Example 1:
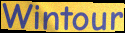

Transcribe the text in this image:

Wintour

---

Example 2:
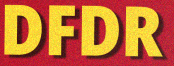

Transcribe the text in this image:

DFDR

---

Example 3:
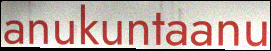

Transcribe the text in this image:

anukuntaanu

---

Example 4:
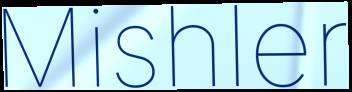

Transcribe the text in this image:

Mishler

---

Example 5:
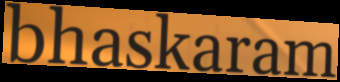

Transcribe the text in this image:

bhaskaram